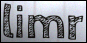
limr